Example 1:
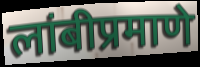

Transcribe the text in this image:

लांबीप्रमाणे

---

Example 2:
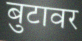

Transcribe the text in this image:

बुटावर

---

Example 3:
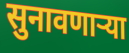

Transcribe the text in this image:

सुनावणाऱ्या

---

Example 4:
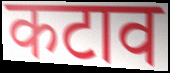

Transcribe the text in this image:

कटाव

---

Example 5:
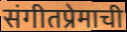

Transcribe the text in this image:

संगीतप्रेमाची